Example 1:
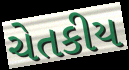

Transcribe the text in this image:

ચેતકીય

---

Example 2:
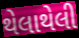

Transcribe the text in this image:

થેલાથેલી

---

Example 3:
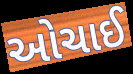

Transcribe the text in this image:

ઓચાઈ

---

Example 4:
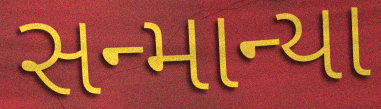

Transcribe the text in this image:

સન્માન્યા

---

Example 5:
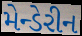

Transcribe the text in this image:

મેન્ડેરીન